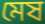
মেষ